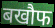
बखौफ